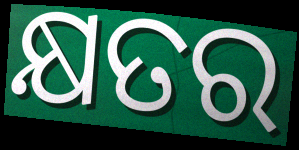
କ୍ଷତର